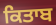
ਕਿਤਾਬ